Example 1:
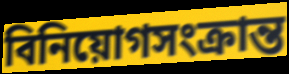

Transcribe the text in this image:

বিনিয়োগসংক্রান্ত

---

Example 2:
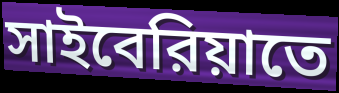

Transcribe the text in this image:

সাইবেরিয়াতে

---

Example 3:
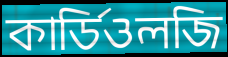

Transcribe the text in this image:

কার্ডিওলজি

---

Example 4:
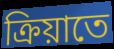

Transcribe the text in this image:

ক্রিয়াতে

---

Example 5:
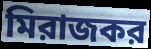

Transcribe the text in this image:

মিরাজকর